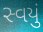
સ્વયું